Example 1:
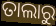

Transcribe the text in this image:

ତାଲାରୁ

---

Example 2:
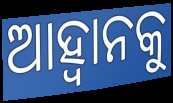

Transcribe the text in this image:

ଆହ୍ବାନକୁ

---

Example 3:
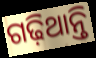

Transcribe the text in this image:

ଗଢ଼ିଥାନ୍ତି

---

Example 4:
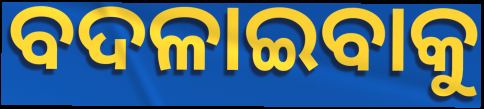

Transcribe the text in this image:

ବଦଳାଇବାକୁ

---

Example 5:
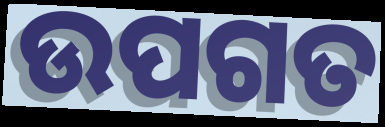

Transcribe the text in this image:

ଉପଗତ